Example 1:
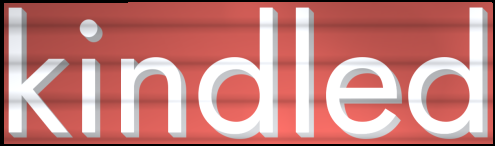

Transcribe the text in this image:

kindled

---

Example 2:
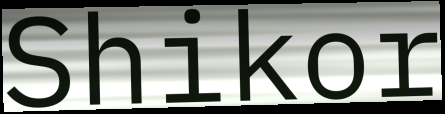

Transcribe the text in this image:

Shikor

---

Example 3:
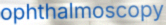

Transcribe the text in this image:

ophthalmoscopy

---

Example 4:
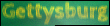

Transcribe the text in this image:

Gettysburg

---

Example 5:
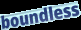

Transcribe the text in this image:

boundless